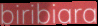
biribiara